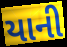
યાની